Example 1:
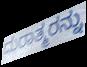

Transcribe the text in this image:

ದುರಾತ್ಮರನ್ನು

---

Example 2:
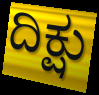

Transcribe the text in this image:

ದಿಕ್ಷು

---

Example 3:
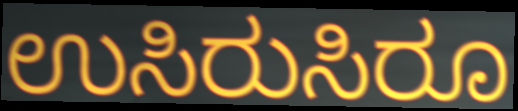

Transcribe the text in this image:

ಉಸಿರುಸಿರೂ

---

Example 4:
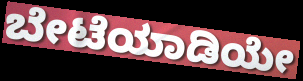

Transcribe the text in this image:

ಬೇಟೆಯಾಡಿಯೇ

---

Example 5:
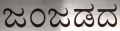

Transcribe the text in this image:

ಜಂಜಡದ